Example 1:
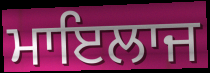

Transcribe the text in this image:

ਮਾਇਲਾਜ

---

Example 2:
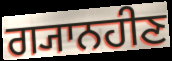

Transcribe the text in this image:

ਗ੍ਯਾਨਹੀਣ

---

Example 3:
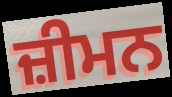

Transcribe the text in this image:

ਜ਼ੀਮਨ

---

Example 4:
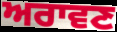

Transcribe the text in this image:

ਅਰਾਵਣ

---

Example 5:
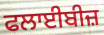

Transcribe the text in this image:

ਫਲਾਈਬੀਜ਼